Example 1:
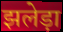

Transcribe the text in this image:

झलेड़ा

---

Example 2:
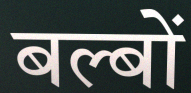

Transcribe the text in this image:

बल्बों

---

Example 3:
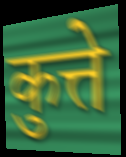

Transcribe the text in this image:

कुत्ते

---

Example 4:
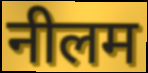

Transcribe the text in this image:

नीलम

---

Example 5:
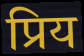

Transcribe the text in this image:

प्रिय